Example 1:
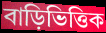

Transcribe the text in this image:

বাড়িভিত্তিক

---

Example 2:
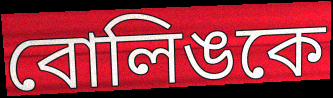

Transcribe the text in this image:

বোলিঙকে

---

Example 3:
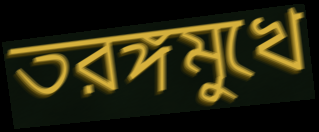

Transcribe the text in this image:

তরঙ্গমুখে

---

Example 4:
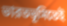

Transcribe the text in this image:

ভারতভূমিতেই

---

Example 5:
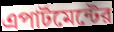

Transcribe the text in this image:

এপার্টমেন্টের